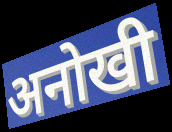
अनोखी